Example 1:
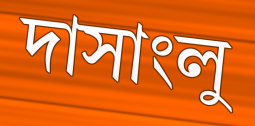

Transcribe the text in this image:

দাসাংলু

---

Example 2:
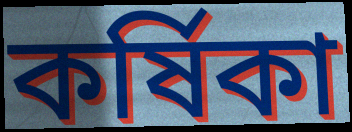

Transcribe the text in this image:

কর্ষিকা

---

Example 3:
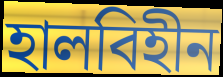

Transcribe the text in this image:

হালবিহীন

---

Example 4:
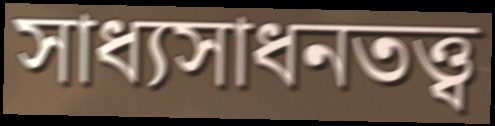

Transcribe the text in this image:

সাধ্যসাধনতত্ত্ব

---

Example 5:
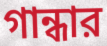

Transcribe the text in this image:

গান্ধার